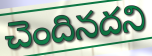
చెందినదని